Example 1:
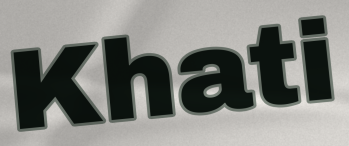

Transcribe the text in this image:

Khati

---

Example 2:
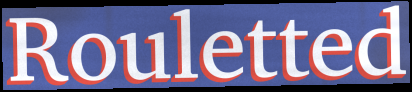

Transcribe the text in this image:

Rouletted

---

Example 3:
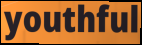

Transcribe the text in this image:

youthful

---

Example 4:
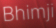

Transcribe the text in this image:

Bhimji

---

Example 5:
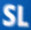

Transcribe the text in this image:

SL